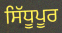
ਸਿੱਧੂਪੂਰ